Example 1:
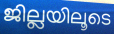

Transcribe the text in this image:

ജില്ലയിലൂടെ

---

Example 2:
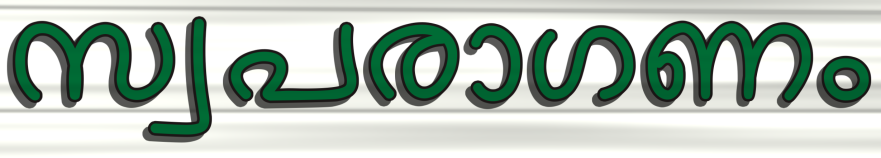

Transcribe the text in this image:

സ്വപരാഗണം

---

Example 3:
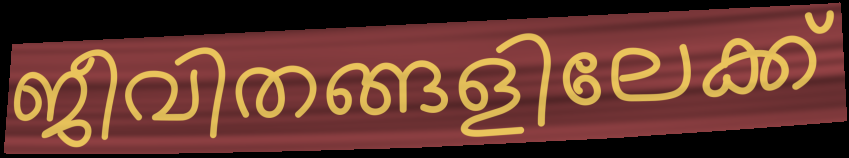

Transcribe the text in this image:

ജീവിതങ്ങളിലേക്ക്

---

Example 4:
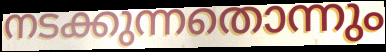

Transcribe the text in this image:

നടക്കുന്നതൊന്നും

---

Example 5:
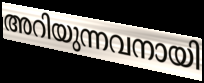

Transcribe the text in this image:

അറിയുന്നവനായി